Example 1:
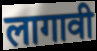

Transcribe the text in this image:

लागावी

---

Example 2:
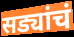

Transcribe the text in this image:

सड्यांचं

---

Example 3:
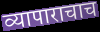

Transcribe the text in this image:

व्यापाराचाच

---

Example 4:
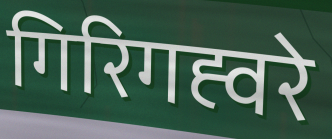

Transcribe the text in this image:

गिरिगह्वरे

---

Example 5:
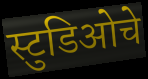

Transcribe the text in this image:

स्टुडिओचे